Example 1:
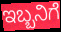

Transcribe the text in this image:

ಇಬ್ಬನಿಗೆ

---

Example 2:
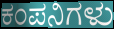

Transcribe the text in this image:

ಕಂಪನಿಗಳು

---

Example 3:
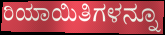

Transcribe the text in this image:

ರಿಯಾಯಿತಿಗಳನ್ನೂ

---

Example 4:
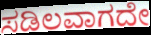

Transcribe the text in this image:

ಸಡಿಲವಾಗದೇ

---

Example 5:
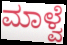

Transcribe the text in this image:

ಮಾಳ್ವೆ